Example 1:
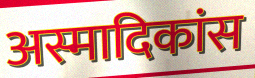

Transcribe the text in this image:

अस्मादिकांस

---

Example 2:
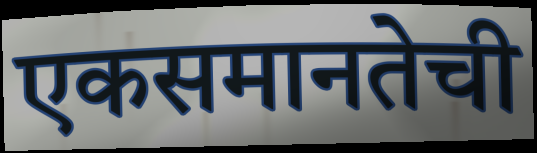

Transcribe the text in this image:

एकसमानतेची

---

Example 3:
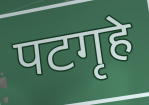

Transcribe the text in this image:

पटगृहे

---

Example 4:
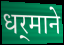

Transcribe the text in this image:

धर्माने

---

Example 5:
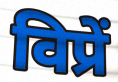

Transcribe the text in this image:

विप्रें